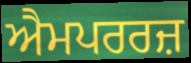
ਐਮਪਰਰਜ਼